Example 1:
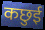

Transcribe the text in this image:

कछुई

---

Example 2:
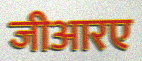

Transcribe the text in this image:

जीआरए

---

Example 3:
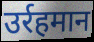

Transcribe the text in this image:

उर्रहमान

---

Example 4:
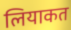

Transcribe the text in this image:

लियाकत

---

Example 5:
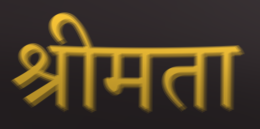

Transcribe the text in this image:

श्रीमता